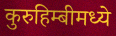
कुरुहिम्बीमध्ये